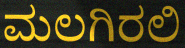
ಮಲಗಿರಲಿ